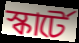
স্কার্টে